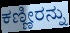
ಕಣ್ಣೀರನ್ನು